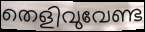
തെളിവുവേണ്ട